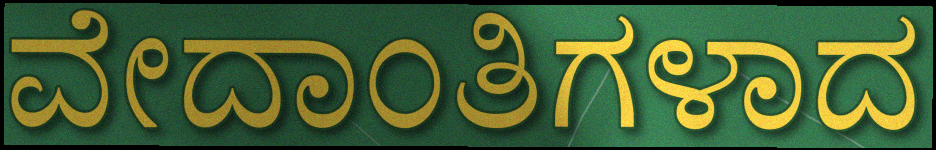
ವೇದಾಂತಿಗಳಾದ